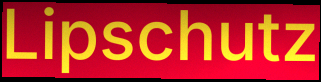
Lipschutz